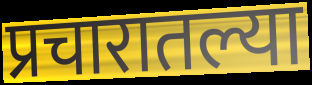
प्रचारातल्या